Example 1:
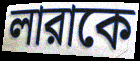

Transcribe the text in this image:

লারাকে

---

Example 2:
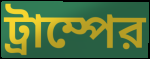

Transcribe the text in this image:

ট্রাম্পের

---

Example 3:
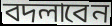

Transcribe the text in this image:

বদলাবেন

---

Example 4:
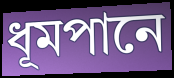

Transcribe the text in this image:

ধূমপানে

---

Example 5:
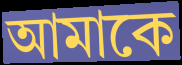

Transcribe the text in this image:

আমাকে